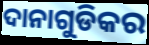
ଦାନାଗୁଡିକର